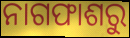
ନାଗଫାଶରୁ